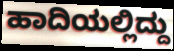
ಹಾದಿಯಲ್ಲಿದ್ದು